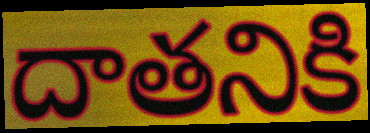
దాతనికి